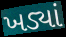
ખડ્યાં